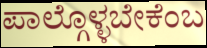
ಪಾಲ್ಗೊಳ್ಳಬೇಕೆಂಬ